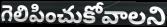
గెలిపించుకోవాలని